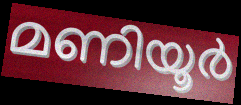
മണിയൂർ